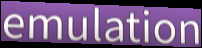
emulation